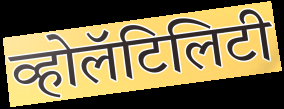
व्होलॅटिलिटी